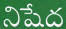
నిషేద